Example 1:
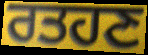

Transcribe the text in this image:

ਰਤਹਣ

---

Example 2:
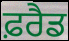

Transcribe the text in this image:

ਫ਼ਰੈਡ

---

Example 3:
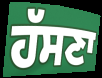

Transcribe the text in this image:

ਹੱਸਣਾ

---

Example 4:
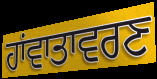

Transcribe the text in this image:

ਹਾਂਵਾਤਾਵਰਣ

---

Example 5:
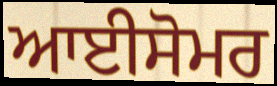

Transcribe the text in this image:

ਆਈਸੋਮਰ